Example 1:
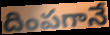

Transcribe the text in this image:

దింపగానే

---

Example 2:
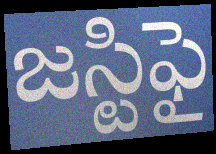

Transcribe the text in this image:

జస్టిఫై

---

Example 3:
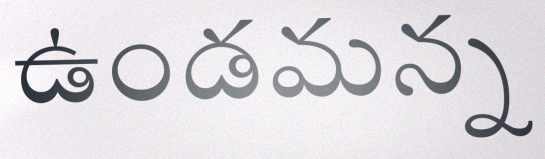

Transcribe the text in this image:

ఉండమన్న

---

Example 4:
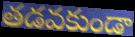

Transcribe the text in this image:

తడవకుండా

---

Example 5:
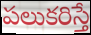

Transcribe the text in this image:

పలుకరిస్తే